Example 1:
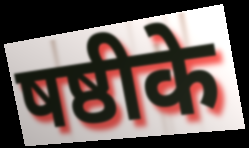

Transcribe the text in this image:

षष्ठीके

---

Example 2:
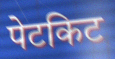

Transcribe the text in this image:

पेटकिट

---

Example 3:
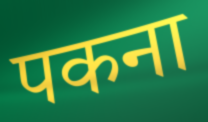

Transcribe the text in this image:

पकना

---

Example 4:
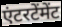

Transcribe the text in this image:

एंटरटेंमेंट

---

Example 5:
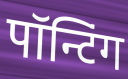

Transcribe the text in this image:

पॉन्टिंग